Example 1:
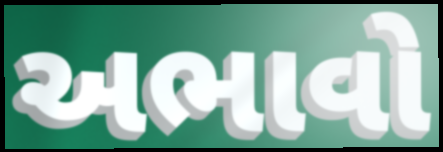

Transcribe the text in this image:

અભાવો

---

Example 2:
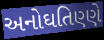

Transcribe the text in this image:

અનોઘતિણ્ણે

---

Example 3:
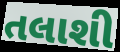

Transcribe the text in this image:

તલાશી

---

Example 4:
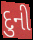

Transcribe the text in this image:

દુની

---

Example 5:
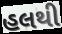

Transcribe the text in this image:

હલથી